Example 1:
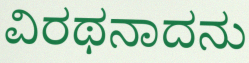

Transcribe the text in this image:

ವಿರಥನಾದನು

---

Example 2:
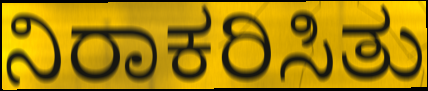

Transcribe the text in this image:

ನಿರಾಕರಿಸಿತು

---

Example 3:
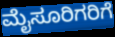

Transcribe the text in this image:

ಮೈಸೂರಿಗರಿಗೆ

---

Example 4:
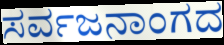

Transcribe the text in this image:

ಸರ್ವಜನಾಂಗದ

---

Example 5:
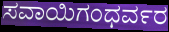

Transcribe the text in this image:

ಸವಾಯಿಗಂಧರ್ವರ